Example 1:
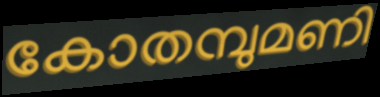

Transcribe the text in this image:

കോതമ്പുമണി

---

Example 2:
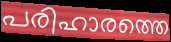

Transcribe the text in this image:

പരിഹാരത്തെ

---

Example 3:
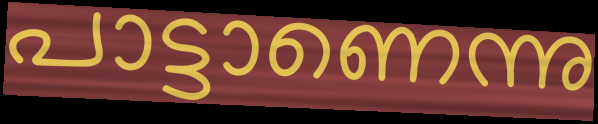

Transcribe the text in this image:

പാട്ടാണെന്നു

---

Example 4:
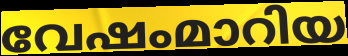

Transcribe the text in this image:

വേഷംമാറിയ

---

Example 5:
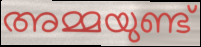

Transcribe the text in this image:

അമ്മയുണ്ട്